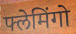
फ्लेमिंगो